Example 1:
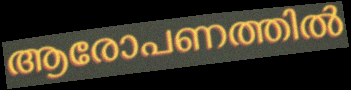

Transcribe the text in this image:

ആരോപണത്തിൽ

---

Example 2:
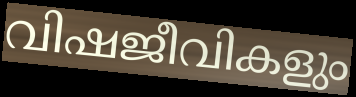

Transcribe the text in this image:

വിഷജീവികളും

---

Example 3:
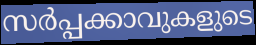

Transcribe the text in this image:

സർപ്പക്കാവുകളുടെ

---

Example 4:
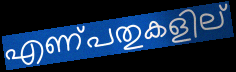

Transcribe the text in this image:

എണ്പതുകളില്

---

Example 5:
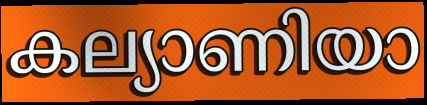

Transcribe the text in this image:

കല്യാണിയാ